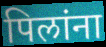
पिलांना